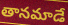
తానమాడే